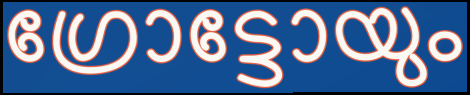
ഗ്രോട്ടോയും